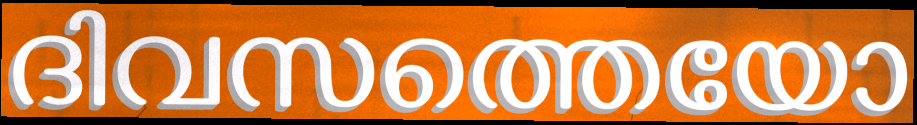
ദിവസത്തെയോ